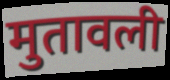
मुतावली